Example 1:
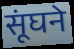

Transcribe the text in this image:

सूंघने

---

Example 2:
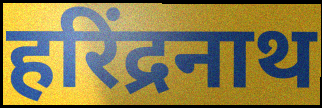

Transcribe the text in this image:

हरिंद्रनाथ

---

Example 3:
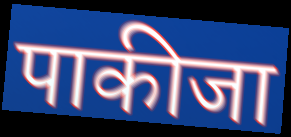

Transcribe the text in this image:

पाकीजा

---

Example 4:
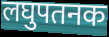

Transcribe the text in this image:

लघुपतनक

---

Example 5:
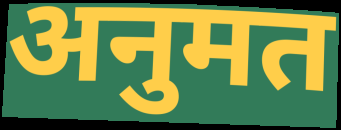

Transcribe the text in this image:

अनुमत